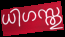
ധിഗസ്തു